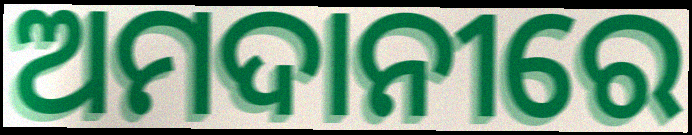
ଅମଦାନୀରେ